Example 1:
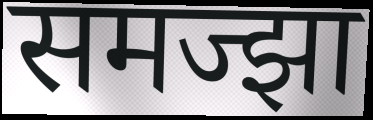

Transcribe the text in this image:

समज्झा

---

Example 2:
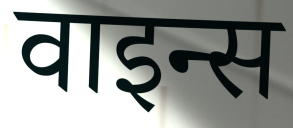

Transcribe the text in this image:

वाइन्स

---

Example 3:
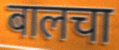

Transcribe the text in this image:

बालचा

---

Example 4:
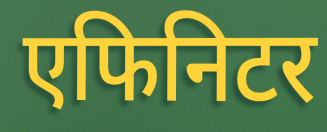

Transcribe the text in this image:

एफिनिटर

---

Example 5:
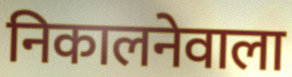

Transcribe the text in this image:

निकालनेवाला